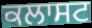
ਕਲਾਸਟ